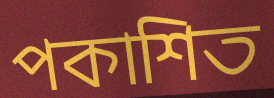
পকাশিত